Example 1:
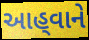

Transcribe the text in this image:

આહ્‌વાને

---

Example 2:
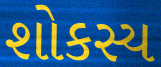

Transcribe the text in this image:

શોકસ્ય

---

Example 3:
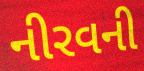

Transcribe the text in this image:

નીરવની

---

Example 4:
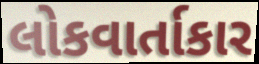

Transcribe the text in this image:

લોકવાર્તાકાર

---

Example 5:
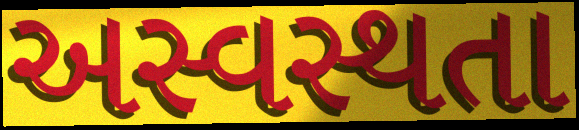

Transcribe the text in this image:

અસ્વસ્થતા